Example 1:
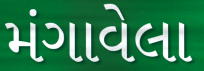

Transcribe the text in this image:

મંગાવેલા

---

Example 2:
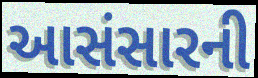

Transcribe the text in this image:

આસંસારની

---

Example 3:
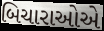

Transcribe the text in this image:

બિચારાઓએ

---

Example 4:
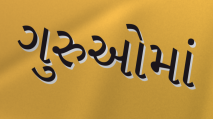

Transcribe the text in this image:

ગુરુઓમાં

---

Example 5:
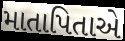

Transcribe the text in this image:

માતાપિતાએ